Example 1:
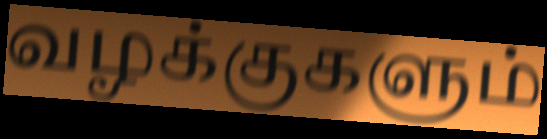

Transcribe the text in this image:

வழக்குகளும்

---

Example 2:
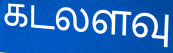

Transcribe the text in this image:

கடலளவு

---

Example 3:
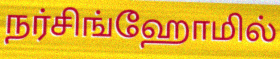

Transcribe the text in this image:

நர்சிங்ஹோமில்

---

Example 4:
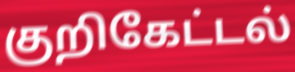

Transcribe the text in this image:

குறிகேட்டல்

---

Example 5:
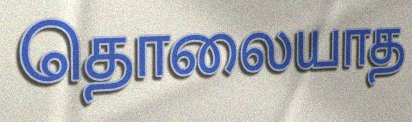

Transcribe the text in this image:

தொலையாத